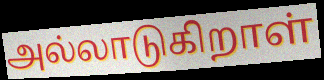
அல்லாடுகிறாள்